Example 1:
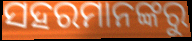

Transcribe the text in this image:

ସହରମାନଙ୍କରୁ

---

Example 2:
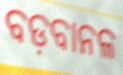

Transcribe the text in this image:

ବଡ଼ବାନଳ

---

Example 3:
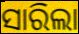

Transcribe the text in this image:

ସାରିଲା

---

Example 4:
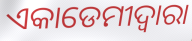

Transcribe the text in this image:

ଏକାଡେମୀଦ୍ୱାରା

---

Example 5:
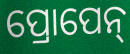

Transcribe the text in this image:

ପ୍ରୋପେନ୍